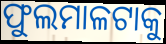
ଫୁଲମାଳଟାକୁ